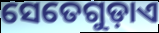
ସେତେଗୁଡ଼ାଏ